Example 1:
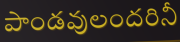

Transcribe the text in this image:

పాండవులందరినీ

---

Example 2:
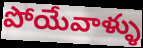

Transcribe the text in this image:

పోయేవాళ్ళు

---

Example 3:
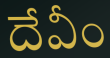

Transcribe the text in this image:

దేవీం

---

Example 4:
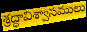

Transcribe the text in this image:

శ్రద్ధావిశ్వాసములు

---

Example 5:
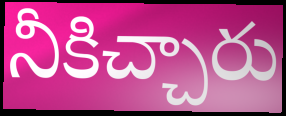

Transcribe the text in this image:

నీకిచ్చారు